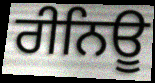
ਰੀਨਿਊ